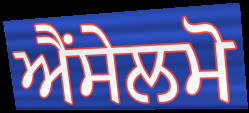
ਐਂਸੇਲਮੋ